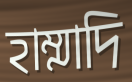
হাম্মাদি